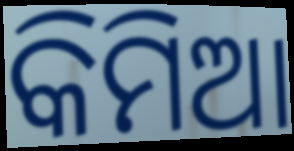
କିମିଆ